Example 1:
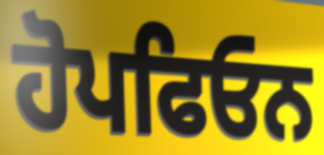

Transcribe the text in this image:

ਹੋਪਫਿਓਨ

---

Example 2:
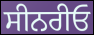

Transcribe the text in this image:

ਸੀਨਰੀਓ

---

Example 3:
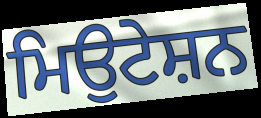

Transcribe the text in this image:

ਮਿਉਟੇਸ਼ਨ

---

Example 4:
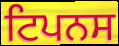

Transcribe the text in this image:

ਟਿਪਨਸ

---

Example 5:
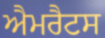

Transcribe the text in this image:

ਐਮਰੈਟਸ